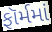
ફૉર્મમાં